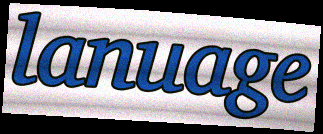
lanuage